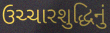
ઉચ્ચારશુદ્ધિનું